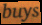
buys